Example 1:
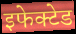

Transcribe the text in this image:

इफेक्टेड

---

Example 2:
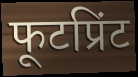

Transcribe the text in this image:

फूटप्रिंट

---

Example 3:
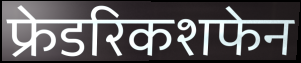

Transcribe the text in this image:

फ्रेडरिकशफेन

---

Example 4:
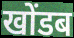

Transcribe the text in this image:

खोंडब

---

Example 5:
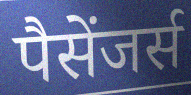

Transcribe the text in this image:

पैसेंजर्स